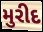
મુરીદ